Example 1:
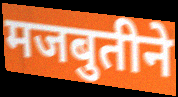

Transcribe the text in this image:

मजबुतीने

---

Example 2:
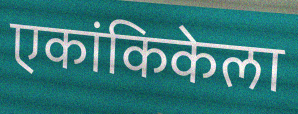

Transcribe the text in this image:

एकांकिकेला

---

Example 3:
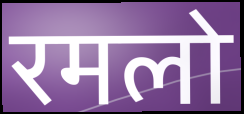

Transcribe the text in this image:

रमलो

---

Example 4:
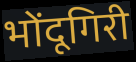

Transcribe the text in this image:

भोंदूगिरी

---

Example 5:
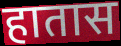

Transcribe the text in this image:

हातास